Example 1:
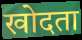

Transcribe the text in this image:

खोदता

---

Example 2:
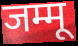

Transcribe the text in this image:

जम्मू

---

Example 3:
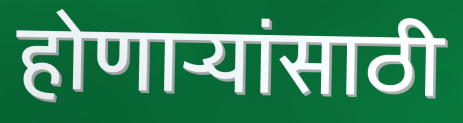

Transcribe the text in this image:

होणाऱ्यांसाठी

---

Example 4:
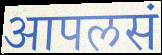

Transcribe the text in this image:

आपलसं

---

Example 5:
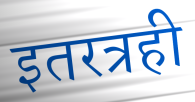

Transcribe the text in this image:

इतरत्रही